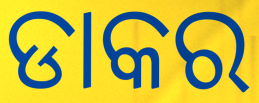
ଡାକର